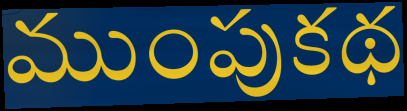
ముంపుకథ